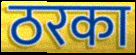
ठरका